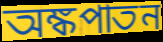
অঙ্কপাতন